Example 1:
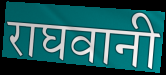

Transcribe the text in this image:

राघवानी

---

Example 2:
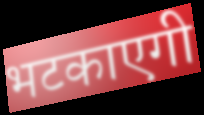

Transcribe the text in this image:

भटकाएगी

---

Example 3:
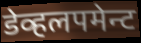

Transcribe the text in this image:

डेव्हलपमेन्ट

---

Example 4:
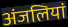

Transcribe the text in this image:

अंजलियां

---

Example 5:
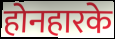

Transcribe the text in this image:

होनहारके